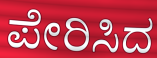
ಪೇರಿಸಿದ